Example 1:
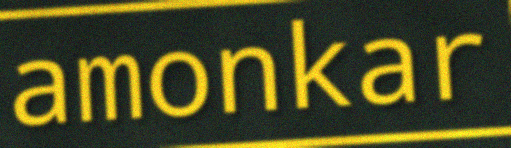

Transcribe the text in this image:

amonkar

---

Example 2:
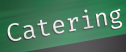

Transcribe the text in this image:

Catering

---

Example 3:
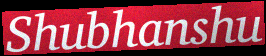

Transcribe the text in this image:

Shubhanshu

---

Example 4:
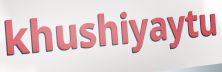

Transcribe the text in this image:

khushiyaytu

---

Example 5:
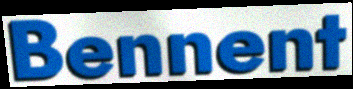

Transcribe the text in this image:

Bennent